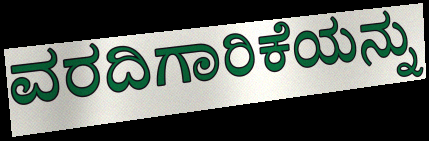
ವರದಿಗಾರಿಕೆಯನ್ನು